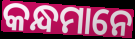
କନ୍ଧମାନେ